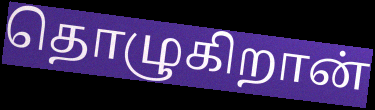
தொழுகிறான்